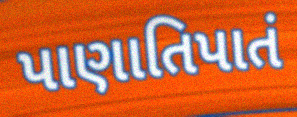
પાણાતિપાતં